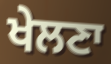
ਖੇਲਣਾ